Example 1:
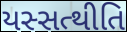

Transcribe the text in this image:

યસ્સત્થીતિ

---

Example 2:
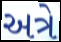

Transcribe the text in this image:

અત્રે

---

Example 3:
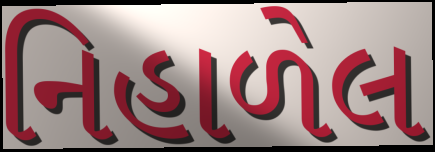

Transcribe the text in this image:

નિહાળેલ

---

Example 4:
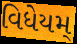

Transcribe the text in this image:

વિધેયમ્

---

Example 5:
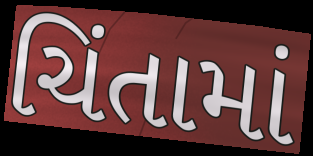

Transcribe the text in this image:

ચિંતામાં